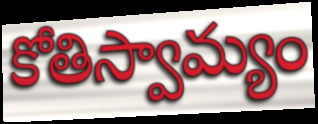
కోతిస్వామ్యం